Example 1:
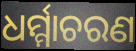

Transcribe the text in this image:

ଧର୍ମ୍ମାଚରଣ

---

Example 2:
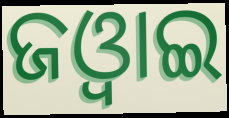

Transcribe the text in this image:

ଜଓ୍ବାଇ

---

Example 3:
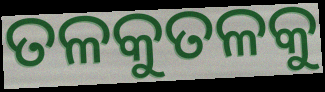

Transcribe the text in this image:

ତଳକୁତଳକୁ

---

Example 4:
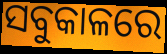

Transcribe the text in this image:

ସବୁକାଳରେ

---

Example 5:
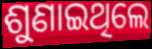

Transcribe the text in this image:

ଶୁଣାଇଥିଲେ